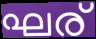
ഘര്